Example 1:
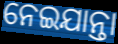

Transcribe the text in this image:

ନେଇଯାନ୍ତା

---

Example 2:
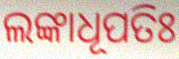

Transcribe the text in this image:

ଲଙ୍କାଧୂପତିଃ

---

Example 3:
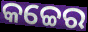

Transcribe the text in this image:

କଚ୍ଚେର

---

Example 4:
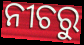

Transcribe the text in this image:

ନୀଚରୁ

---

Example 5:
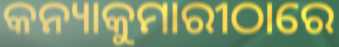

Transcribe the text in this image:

କନ୍ୟାକୁମାରୀଠାରେ